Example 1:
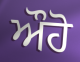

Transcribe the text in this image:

ਔਹੋ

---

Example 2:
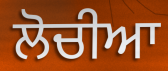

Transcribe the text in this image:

ਲੋਚੀਆ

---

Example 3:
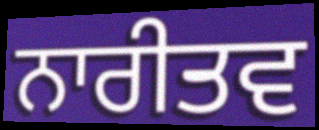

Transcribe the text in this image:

ਨਾਰੀਤਵ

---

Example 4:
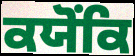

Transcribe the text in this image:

ਕਯੋਂਕਿ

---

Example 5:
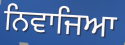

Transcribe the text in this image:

ਨਿਵਾਜਿਆ